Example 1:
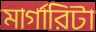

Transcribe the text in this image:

মার্গারিটা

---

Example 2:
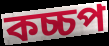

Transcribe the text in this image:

কচ্চপ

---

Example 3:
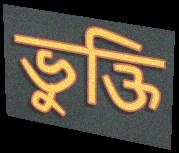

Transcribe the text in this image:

ভুক্তি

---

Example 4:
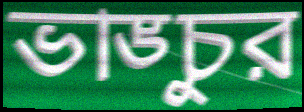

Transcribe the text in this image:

ভাঙ্চুর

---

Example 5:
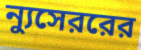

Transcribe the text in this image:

ন্যুসেররের